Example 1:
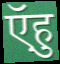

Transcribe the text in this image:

ऍहु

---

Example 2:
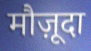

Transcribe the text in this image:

मौज़ूदा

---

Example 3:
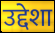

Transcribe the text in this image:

उद्देशा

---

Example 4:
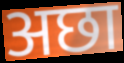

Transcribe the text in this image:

अछा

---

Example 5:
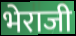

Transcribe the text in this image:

भेराजी